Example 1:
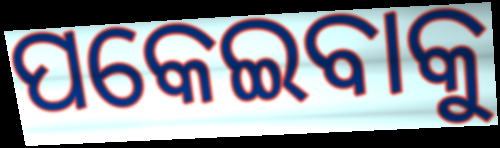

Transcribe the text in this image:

ପକେଇବାକୁ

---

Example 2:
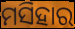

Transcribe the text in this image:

ମସିହାର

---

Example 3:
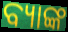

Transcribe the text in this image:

ବ୍ୟାଙ୍କ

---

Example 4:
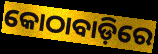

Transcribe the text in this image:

କୋଠାବାଡ଼ିରେ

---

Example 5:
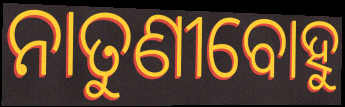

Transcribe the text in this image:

ନାତୁଣୀବୋହୁ